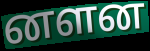
னளன